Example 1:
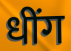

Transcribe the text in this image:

धींग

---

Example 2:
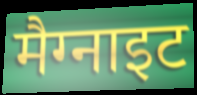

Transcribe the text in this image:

मैग्नाइट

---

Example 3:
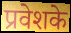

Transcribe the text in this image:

प्रवेशके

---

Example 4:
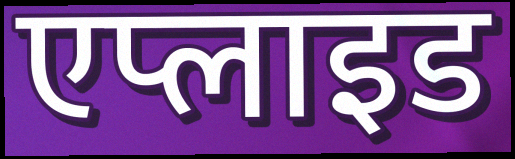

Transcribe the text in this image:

एप्लाइड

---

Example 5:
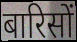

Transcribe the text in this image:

बारिसों